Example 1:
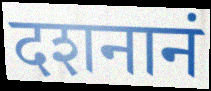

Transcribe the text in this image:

दशनानं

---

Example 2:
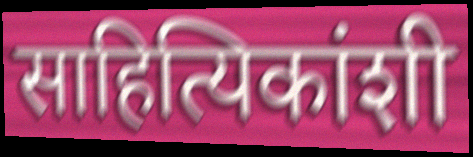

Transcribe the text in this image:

साहित्यिकांशी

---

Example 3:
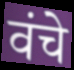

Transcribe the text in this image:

वंचे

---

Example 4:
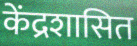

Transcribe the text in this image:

केंद्रशासित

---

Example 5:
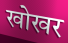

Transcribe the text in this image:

खोखर